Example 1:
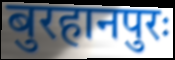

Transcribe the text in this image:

बुरहानपुरः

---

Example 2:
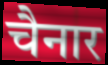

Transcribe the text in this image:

चैनार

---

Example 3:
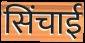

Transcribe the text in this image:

सिंचाई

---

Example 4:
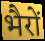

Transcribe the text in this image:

भैरों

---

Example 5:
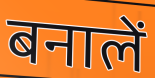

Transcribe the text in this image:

बनालें